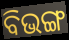
ବିଭଙ୍ଗ